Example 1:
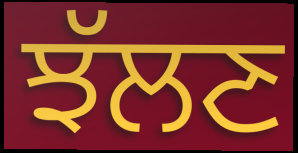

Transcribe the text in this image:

ਝੱਲਣ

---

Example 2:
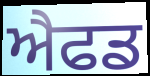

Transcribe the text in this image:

ਐਫਡ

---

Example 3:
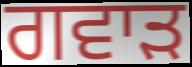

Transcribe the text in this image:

ਗਵਾੜ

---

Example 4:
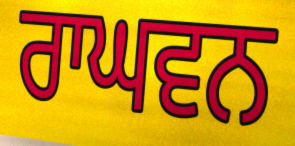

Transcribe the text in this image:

ਰਾਘਵਨ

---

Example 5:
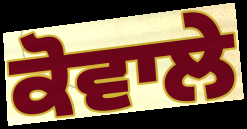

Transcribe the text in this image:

ਕੋਵਾਲੇ